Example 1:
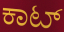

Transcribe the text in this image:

ಕಾಟ್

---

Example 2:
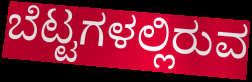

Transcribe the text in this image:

ಬೆಟ್ಟಗಳಲ್ಲಿರುವ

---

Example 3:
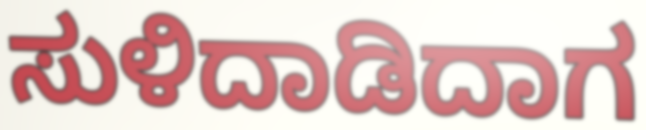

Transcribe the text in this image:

ಸುಳಿದಾಡಿದಾಗ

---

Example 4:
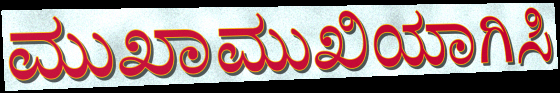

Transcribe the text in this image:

ಮುಖಾಮುಖಿಯಾಗಿಸಿ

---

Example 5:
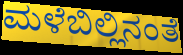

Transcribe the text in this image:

ಮಳೆಬಿಲ್ಲಿನಂತೆ